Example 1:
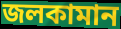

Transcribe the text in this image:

জলকামান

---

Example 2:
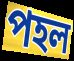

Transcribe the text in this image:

পহল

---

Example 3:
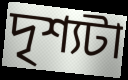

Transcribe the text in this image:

দৃশ্যটা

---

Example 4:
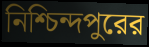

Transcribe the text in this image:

নিশ্চিন্দপুরের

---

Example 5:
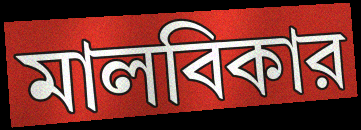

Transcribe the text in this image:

মালবিকার